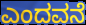
ಎಂದವನೆ